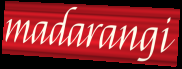
madarangi